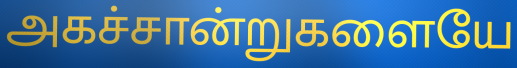
அகச்சான்றுகளையே